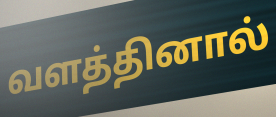
வளத்தினால்